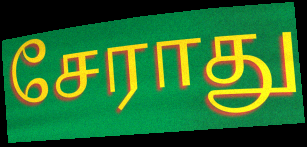
சேராது